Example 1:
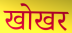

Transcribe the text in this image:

खोखर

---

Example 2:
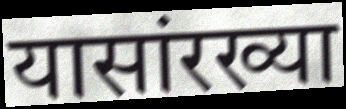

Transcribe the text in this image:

यासांरख्या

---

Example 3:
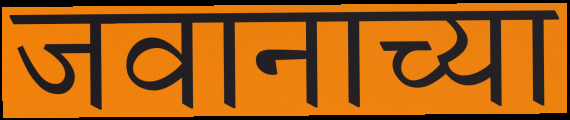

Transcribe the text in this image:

जवानाच्या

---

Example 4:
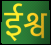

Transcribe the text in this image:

ईश्व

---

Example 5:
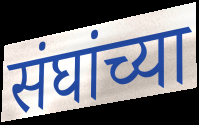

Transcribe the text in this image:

संघांच्या